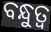
ବନ୍ଧୁତ୍ୱ